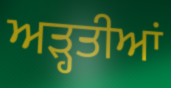
ਅੜ੍ਹਤੀਆਂ